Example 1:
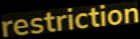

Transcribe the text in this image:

restriction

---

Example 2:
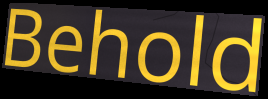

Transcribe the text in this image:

Behold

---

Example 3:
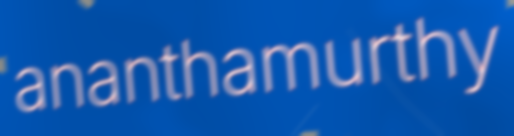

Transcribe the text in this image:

ananthamurthy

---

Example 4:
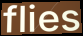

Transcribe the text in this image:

flies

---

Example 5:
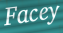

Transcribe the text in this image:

Facey